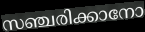
സഞ്ചരിക്കാനോ